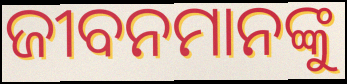
ଜୀବନମାନଙ୍କୁ